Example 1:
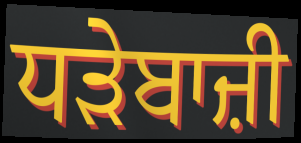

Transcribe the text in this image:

ਧੜੇਬਾਜ਼ੀ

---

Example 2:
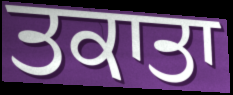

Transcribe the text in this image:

ਤਕਾਤਾ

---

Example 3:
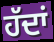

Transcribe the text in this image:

ਹੱਦਾਂ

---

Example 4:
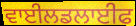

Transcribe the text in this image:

ਵਾਈਲਡਲਾਈਫ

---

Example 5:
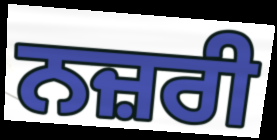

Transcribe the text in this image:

ਨਜ਼ਰੀ